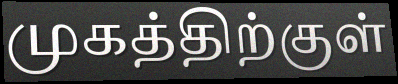
முகத்திற்குள்